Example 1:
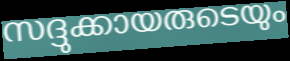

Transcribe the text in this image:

സദ്ദുക്കായരുടെയും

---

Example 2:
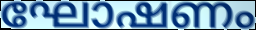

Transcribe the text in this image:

ഘോഷണം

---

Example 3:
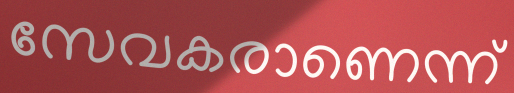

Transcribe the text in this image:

സേവകരാണെന്ന്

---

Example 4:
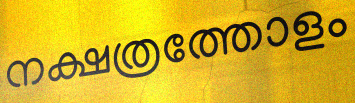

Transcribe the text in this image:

നക്ഷത്രത്തോളം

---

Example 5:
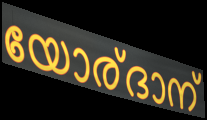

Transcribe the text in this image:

യോര്ദാന്